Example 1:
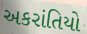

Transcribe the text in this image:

અકરાંતિયો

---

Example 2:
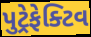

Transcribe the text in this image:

પુટ્રેફેક્ટિવ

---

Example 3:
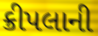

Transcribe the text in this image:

ક્રીપલાની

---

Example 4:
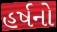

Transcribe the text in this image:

હર્ષનો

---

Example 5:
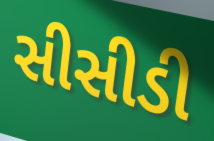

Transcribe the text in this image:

સીસીડી